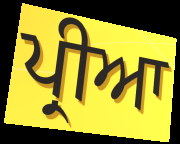
ਪ੍ਰੀਆ